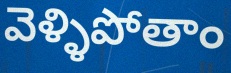
వెళ్ళిపోతాం